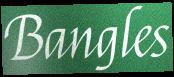
Bangles